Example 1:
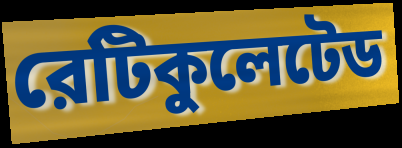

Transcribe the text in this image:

রেটিকুলেটেড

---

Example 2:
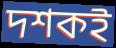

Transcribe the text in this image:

দশকই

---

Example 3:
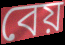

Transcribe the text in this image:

বেয়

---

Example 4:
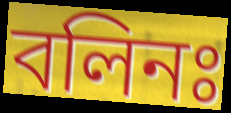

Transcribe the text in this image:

বলিনঃ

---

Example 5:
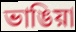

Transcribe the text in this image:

ভাঙিয়া